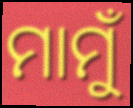
ମାମୁଁ